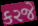
કરજે